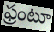
ఫ్రంటూ